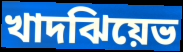
খাদঝিয়েভ